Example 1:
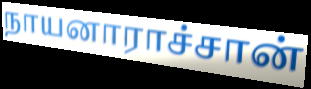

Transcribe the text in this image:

நாயனாராச்சான்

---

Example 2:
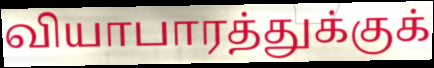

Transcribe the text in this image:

வியாபாரத்துக்குக்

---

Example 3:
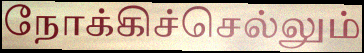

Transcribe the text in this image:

நோக்கிச்செல்லும்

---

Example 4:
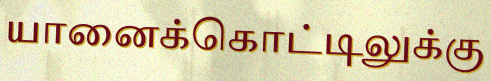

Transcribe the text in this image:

யானைக்கொட்டிலுக்கு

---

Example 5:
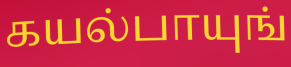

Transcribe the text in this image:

கயல்பாயுங்